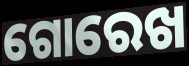
ଗୋରେଖ